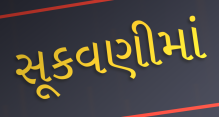
સૂકવણીમાં